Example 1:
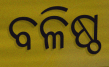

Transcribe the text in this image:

ବଳିଷ୍ଠ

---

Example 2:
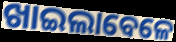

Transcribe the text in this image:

ଖାଇଲାବେଳେ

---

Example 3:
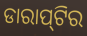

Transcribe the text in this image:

ଡାରାପ୍‌ଟିର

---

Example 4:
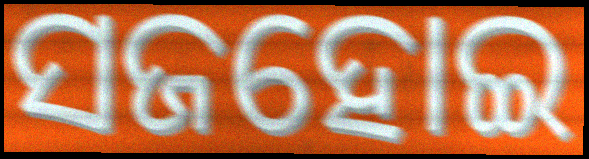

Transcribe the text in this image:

ସଜହୋଇ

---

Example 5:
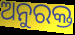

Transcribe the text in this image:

ଅନୁରକ୍ତ